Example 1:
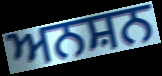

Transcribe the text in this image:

ਅਨਸ਼ਨ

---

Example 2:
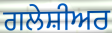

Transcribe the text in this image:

ਗਲੇਸ਼ੀਅਰ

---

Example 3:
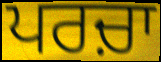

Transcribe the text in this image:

ਪਰਚ਼ਾ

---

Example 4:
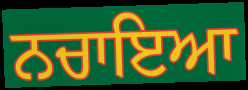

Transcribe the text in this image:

ਨਚਾਇਆ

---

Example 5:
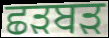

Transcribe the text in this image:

ਛੜਬੜ